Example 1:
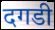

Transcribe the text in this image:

दगडी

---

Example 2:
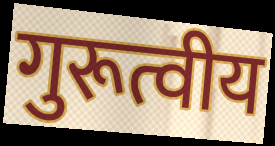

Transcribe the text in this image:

गुरूत्वीय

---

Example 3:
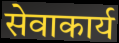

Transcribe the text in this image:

सेवाकार्य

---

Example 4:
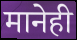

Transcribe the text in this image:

मानेही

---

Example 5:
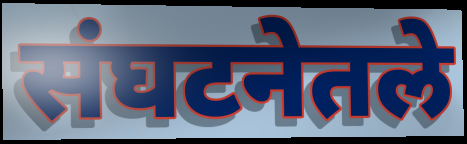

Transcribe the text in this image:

संघटनेतले